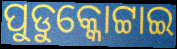
ପୁଡୁକ୍କୋଟ୍ଟାଇ